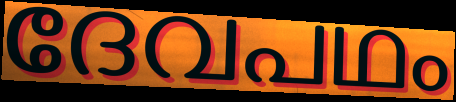
ദേവപഥം